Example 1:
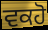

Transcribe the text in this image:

ਵਕਹੋ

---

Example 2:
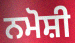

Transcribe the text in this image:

ਨਮੋਸ਼ੀ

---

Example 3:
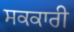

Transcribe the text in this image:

ਸਕਕਾਰੀ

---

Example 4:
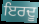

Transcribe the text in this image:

ਇਰਦੂ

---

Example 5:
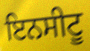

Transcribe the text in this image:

ਇਨਸੀਟੂ